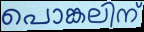
പൊങ്കലിന്